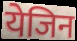
येजिन